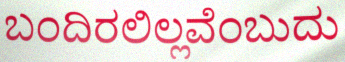
ಬಂದಿರಲಿಲ್ಲವೆಂಬುದು